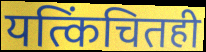
यत्किंचितही